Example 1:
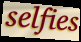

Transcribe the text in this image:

selfies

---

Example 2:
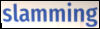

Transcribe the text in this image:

slamming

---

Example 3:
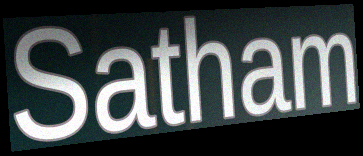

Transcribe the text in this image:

Satham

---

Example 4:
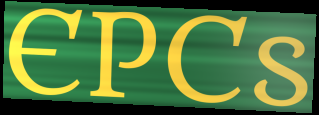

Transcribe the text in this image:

EPCs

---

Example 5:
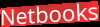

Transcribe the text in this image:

Netbooks